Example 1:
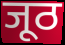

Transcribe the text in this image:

जूठ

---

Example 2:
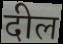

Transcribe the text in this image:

दील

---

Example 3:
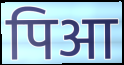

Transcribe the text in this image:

पिआ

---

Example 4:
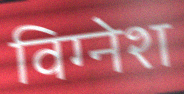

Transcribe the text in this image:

विग्‍नेश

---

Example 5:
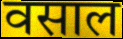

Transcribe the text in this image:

वसाल